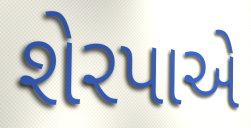
શેરપાએ